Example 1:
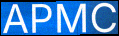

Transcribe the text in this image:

APMC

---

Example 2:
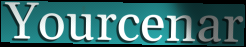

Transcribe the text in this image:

Yourcenar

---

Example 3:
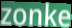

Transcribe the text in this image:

zonke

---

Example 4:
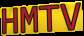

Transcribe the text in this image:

HMTV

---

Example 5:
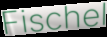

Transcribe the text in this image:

Fischel